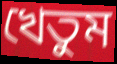
খেতুম